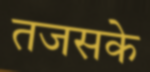
तजसके